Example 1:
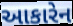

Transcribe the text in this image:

આકારેન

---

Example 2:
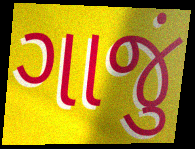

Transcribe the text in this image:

ગાજું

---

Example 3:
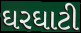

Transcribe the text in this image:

ઘરઘાટી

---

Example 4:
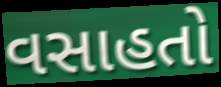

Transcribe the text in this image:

વસાહતો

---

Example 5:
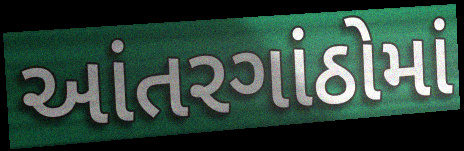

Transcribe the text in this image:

આંતરગાંઠોમાં